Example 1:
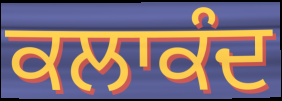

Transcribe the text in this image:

ਕਲਾਕੰਦ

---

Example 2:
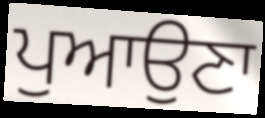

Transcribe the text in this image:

ਪੁਆਉਣਾ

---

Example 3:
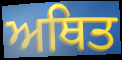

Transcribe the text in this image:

ਅਥਿਤ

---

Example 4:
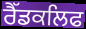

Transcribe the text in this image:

ਰੈੱਡਕਲਿਫ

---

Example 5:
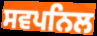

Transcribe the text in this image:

ਸਵਪਨਿਲ